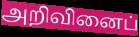
அறிவினைப்